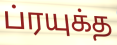
ப்ரயுக்த